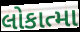
લોકાત્મા